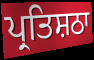
ਪ੍ਰਤਿਸ਼ਠਾ